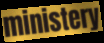
ministery